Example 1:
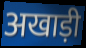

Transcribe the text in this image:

अखाड़ी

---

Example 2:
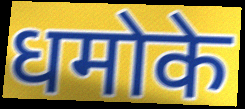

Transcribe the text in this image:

धमोके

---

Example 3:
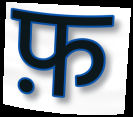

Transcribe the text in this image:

फ़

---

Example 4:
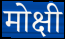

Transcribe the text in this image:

मोक्षी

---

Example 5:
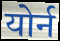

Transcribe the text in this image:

योर्न